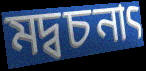
মদ্বচনাৎ